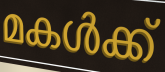
മകൾക്ക്